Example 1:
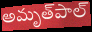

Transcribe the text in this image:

అమృత్‌పాల్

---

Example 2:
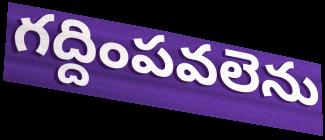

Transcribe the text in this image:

గద్దింపవలెను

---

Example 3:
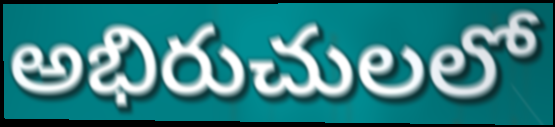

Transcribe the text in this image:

అభిరుచులలో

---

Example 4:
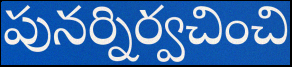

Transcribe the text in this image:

పునర్నిర్వచించి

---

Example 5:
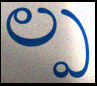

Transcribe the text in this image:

ల్ప